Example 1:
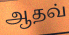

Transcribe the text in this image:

ஆதவ்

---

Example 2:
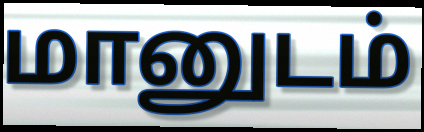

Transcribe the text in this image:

மானுடம்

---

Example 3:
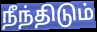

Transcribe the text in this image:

நீந்திடும்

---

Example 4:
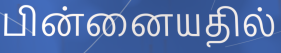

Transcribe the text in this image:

பின்னையதில்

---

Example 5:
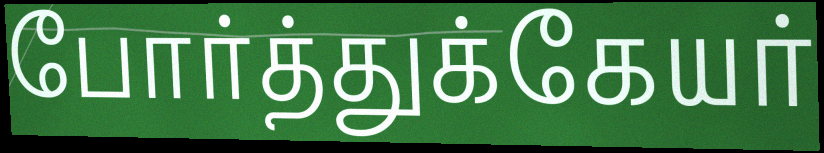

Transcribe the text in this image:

போர்த்துக்கேயர்